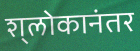
श्लोकानंतर